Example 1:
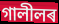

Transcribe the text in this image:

গালীলৰ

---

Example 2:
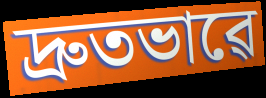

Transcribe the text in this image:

দ্ৰুতভাৱে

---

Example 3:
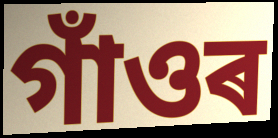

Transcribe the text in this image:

গাঁওৰ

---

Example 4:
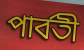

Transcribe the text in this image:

পাৰ্বতী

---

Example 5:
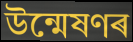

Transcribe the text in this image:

উন্মেষণৰ